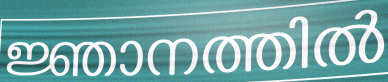
ജ്ഞാനത്തിൽ